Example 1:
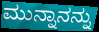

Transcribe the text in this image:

ಮುನ್ನಾನನ್ನು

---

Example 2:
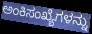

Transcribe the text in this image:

ಅಂಕಿಸಂಖ್ಯೆಗಳನ್ನು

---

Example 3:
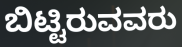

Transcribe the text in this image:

ಬಿಟ್ಟಿರುವವರು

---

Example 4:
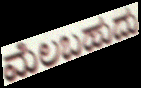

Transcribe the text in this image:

ಮೆಲಬಹುದು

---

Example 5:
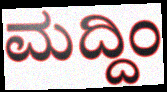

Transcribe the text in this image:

ಮದ್ದಿಂ